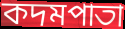
কদমপাতা